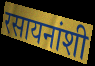
रसायनांशी